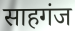
साहगंज